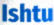
Ishtu